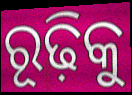
ରୂଢ଼ିକୁ